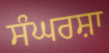
ਸੰਘਰਸ਼ਾ